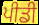
ਪੀਡੀ